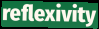
reflexivity